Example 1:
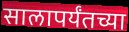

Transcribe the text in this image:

सालापर्यंतच्या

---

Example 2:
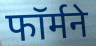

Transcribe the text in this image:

फॉर्मने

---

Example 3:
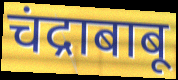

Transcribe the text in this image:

चंद्राबाबू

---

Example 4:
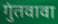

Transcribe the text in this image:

गुंतवावा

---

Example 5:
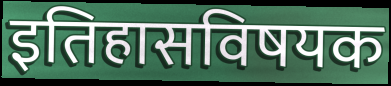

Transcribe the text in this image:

इतिहासविषयक